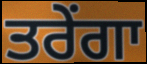
ਤਰੇਂਗਾ